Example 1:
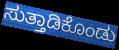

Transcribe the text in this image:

ಸುತ್ತಾಡಿಕೊಂಡು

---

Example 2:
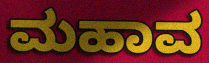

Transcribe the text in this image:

ಮಹಾವ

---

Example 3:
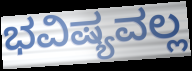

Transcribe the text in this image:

ಭವಿಷ್ಯವಲ್ಲ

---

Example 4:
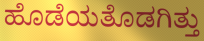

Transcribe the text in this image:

ಹೊಡೆಯತೊಡಗಿತ್ತು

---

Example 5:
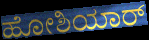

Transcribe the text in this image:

ಹೋಶಿಯಾರ್